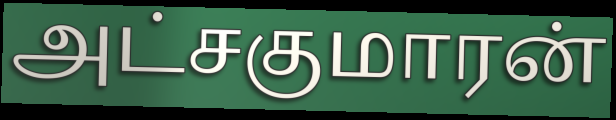
அட்சகுமாரன்